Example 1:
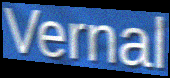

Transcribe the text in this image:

Vernal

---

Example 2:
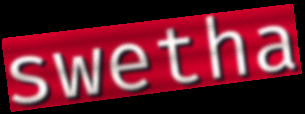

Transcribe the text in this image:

swetha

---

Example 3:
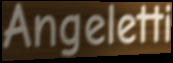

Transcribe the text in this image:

Angeletti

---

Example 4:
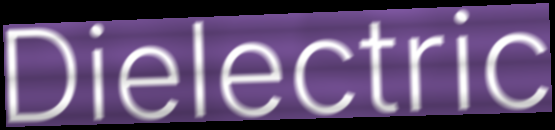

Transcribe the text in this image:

Dielectric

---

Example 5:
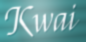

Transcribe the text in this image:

Kwai